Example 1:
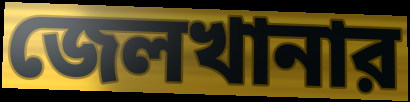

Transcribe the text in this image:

জেলখানার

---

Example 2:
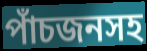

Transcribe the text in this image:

পাঁচজনসহ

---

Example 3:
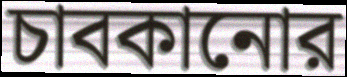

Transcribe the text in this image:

চাবকানোর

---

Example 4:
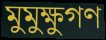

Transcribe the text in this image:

মুমুক্ষুগণ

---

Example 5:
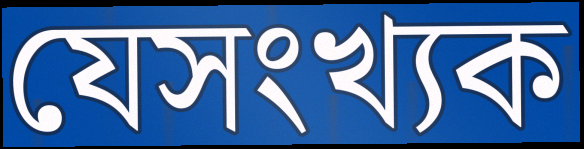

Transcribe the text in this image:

যেসংখ্যক